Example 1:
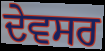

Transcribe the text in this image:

ਦੇਵਸਰ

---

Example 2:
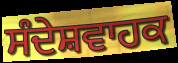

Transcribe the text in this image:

ਸੰਦੇਸ਼ਵਾਹਕ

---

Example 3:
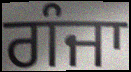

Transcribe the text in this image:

ਗੰਜਾ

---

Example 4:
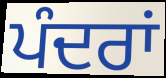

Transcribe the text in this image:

ਪੰਦਰਾਂ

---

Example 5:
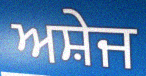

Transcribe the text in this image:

ਅਸ਼ੇਜ